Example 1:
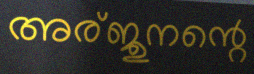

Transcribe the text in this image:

അര്ജുനന്റെ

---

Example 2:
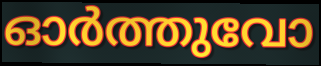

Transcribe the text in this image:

ഓർത്തുവോ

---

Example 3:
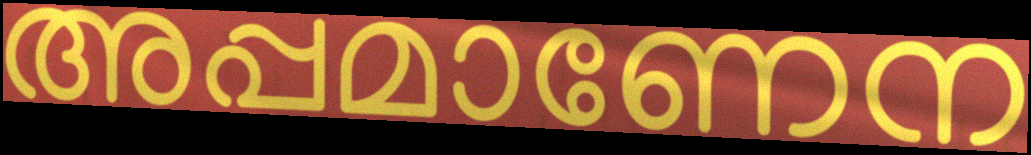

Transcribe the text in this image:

അപ്പമാണേന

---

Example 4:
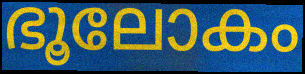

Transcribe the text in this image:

ഭൂലോകം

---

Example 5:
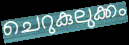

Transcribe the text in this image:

ചെറുകുലുക്കം